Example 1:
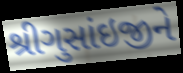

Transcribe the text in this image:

શ્રીગુસાંઇજીને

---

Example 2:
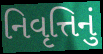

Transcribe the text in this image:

નિવૃત્તિનું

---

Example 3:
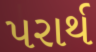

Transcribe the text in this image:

પરાર્થ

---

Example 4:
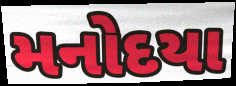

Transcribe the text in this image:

મનોદયા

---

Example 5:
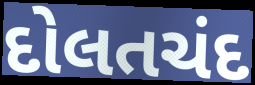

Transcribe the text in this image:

દોલતચંદ